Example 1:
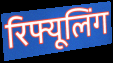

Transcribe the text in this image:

रिफ्यूलिंग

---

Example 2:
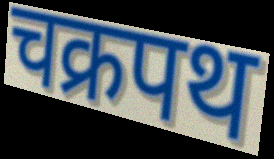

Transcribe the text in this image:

चक्रपथ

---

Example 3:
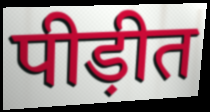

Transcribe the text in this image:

पीड़ीत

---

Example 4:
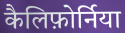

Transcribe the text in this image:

कैलिफ़ोर्निया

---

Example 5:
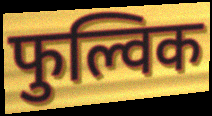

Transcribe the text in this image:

फुल्विक